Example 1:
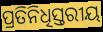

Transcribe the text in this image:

ପ୍ରତିନିଧିସ୍ତରୀୟ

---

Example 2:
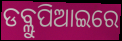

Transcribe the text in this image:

ଡବ୍ଲୁପିଆଇରେ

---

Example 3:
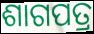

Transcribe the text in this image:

ଶାଗପତ୍ର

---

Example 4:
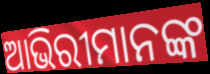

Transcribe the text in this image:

ଆଭିରୀମାନଙ୍କ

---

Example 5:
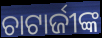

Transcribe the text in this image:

ଚାଟାର୍ଜୀଙ୍କ